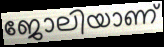
ജോലിയാണ്